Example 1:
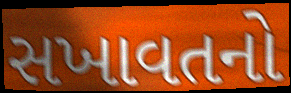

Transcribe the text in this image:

સખાવતનો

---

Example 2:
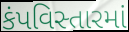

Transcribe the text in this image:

કંપવિસ્તારમાં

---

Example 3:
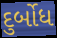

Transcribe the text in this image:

દુર્બોધ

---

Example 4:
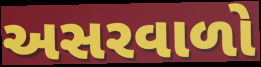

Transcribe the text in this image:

અસરવાળો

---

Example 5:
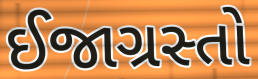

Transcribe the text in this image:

ઈજાગ્રસ્તો